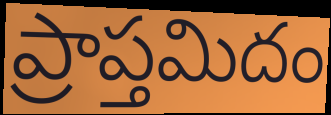
ప్రాప్తమిదం